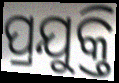
ପ୍ରଯୁକ୍ତି